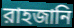
রাহজানি